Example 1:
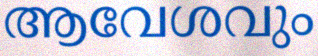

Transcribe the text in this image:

ആവേശവും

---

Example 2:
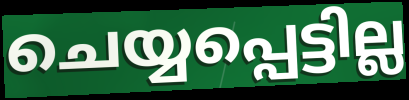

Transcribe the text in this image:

ചെയ്യപ്പെട്ടില്ല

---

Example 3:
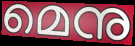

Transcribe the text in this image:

മെനു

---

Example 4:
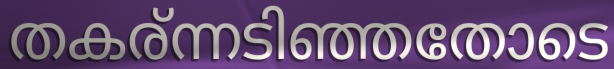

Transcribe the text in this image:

തകര്ന്നടിഞ്ഞതോടെ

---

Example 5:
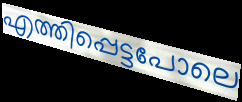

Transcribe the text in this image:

എത്തിപ്പെട്ടപോലെ